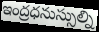
ఇంద్రధనుస్సుల్ని